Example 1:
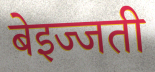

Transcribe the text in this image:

बेइज्जती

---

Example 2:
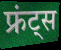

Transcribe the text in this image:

फ्रंट्स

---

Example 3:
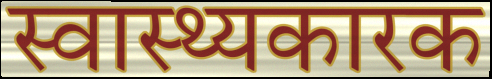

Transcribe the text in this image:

स्वास्थ्यकारक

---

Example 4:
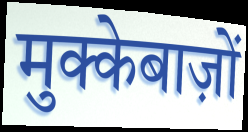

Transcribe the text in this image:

मुक्केबाज़ों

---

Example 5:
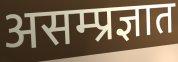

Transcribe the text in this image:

असम्प्रज्ञात